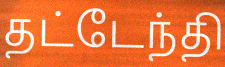
தட்டேந்தி